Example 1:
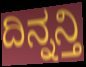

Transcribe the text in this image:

ದಿನ್ನನ್ತಿ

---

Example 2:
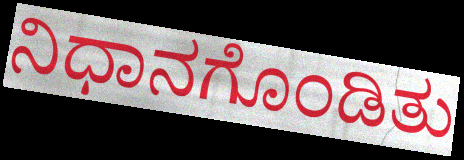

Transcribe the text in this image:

ನಿಧಾನಗೊಂಡಿತು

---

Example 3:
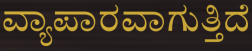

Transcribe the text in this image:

ವ್ಯಾಪಾರವಾಗುತ್ತಿದೆ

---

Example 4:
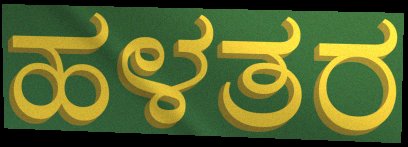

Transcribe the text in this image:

ಹಳತರ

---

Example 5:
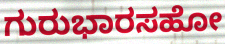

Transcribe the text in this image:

ಗುರುಭಾರಸಹೋ